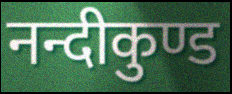
नन्दीकुण्ड